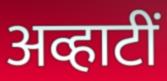
अव्हाटीं